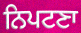
ਨਿਪਟਣਾ